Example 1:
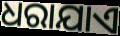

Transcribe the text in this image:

ଧରାଯାଏ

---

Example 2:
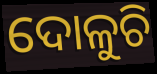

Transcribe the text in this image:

ଦୋଳୁଚି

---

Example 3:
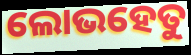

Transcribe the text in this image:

ଲୋଭହେତୁ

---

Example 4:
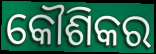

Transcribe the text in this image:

କୌଶିକର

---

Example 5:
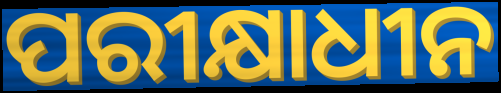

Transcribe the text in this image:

ପରୀକ୍ଷାଧୀନ